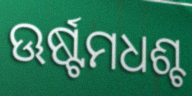
ଊର୍ଷ୍ଟମଧଶ୍ଚ